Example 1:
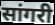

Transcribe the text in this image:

सांगरी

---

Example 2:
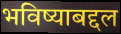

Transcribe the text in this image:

भविष्याबद्दल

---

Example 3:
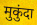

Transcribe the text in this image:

मुकुंदा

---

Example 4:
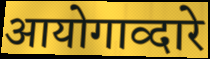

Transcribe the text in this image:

आयोगाव्दारे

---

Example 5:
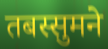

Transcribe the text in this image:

तबस्सुमने